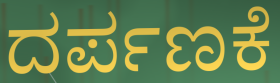
ದರ್ಪಣಕೆ